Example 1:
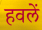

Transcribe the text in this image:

हवलें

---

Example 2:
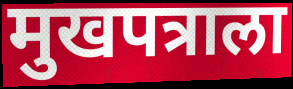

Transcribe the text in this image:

मुखपत्राला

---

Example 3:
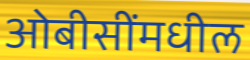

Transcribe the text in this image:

ओबीसींमधील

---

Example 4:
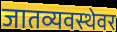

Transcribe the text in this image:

जातव्यवस्थेवर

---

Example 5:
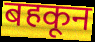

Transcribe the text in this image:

बहकून